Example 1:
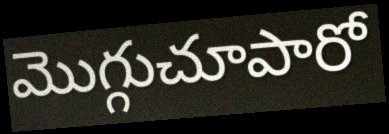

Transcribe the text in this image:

మొగ్గుచూపారో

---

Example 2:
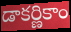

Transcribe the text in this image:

డాకర్ణికాం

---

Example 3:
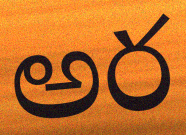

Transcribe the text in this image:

అర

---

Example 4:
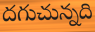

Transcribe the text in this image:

దగుచున్నది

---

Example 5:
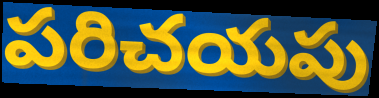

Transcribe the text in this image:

పరిచయపు